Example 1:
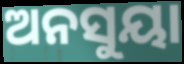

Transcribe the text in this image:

ଅନସୁୟା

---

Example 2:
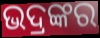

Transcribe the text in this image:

ଭଦ୍ରଙ୍କର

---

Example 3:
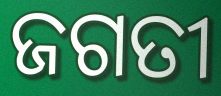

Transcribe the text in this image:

ଜଗତୀ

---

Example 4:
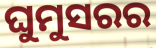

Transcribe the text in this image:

ଘୁମୁସରର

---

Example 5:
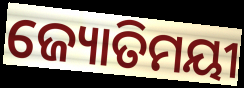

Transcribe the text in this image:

ଜ୍ୟୋତିମୟୀ